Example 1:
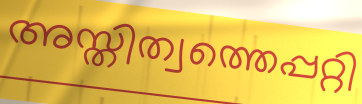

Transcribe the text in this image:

അസ്തിത്വത്തെപ്പറ്റി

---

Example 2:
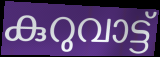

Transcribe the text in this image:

കുറുവാട്ട്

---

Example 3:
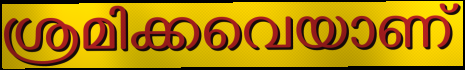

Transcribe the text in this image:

ശ്രമിക്കവെയാണ്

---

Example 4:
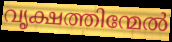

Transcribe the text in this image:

വൃക്ഷത്തിന്മേൽ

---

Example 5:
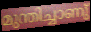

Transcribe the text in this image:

മുന്തിച്ചാണു്